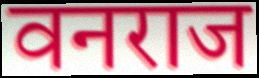
वनराज